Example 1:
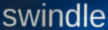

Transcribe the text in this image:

swindle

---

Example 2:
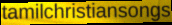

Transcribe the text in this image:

tamilchristiansongs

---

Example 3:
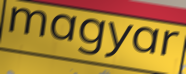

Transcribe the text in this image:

magyar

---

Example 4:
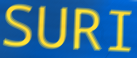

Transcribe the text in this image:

SURI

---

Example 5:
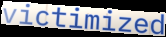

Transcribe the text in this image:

victimized